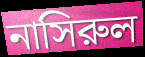
নাসিরুল